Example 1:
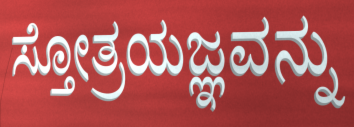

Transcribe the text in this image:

ಸ್ತೋತ್ರಯಜ್ಞವನ್ನು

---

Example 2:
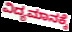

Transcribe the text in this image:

ವಿದ್ಯಮಾನಕ್ಕೆ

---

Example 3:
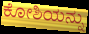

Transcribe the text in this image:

ಕೋಶಿಯನ್ನು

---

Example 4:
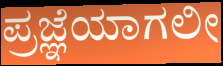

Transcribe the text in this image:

ಪ್ರಜ್ಞೆಯಾಗಲೀ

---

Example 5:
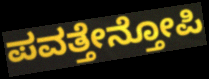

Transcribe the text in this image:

ಪವತ್ತೇನ್ತೋಪಿ